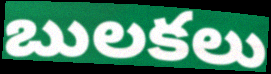
బులకలు